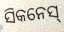
ସିକନେସ୍